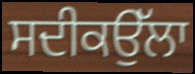
ਸਦੀਕਉੱਲਾ